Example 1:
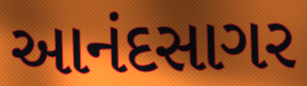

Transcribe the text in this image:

આનંદસાગર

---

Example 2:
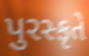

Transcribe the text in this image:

પુરસ્કૃતે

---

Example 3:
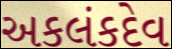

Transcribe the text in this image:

અકલંકદેવ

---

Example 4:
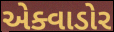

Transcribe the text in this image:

એક્વાડોર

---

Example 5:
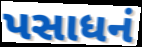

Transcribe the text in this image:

પસાધનં